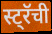
स्ट्रॅची